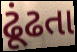
ઢૂંઢતા